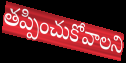
తప్పించుకోవాలని